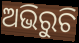
ଅଭିରୁଚି